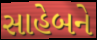
સાહેબને